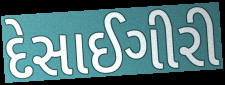
દેસાઈગીરી